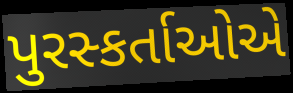
પુરસ્કર્તાઓએ